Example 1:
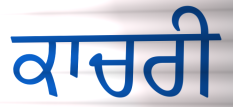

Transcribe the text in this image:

ਕਾਚਰੀ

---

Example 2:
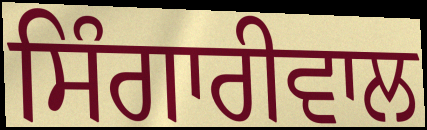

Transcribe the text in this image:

ਸਿੰਗਾਰੀਵਾਲ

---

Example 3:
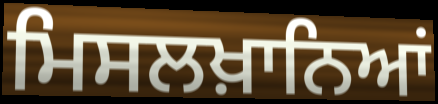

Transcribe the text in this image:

ਮਿਸਲਖ਼ਾਨਿਆਂ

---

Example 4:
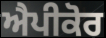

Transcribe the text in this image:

ਐਪੀਕੋਰ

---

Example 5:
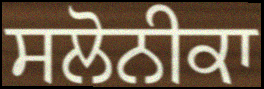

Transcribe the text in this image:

ਸਲੋਨੀਕਾ